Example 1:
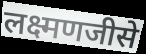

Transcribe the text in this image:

लक्ष्मणजीसे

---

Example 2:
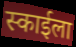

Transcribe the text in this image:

स्काईला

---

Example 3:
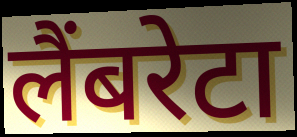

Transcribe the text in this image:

लैंबरेटा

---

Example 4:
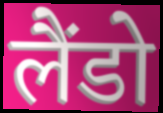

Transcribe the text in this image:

लैंडो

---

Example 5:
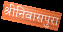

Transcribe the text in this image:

श्रीनिवासपुरा